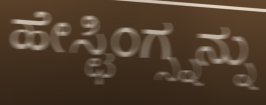
ಹೇಸ್ಟಿಂಗ್ಸ್ನನ್ನು